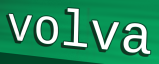
volva